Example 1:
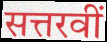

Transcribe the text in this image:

सत्तरवीं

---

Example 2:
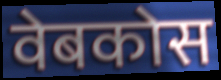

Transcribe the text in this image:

वेबकोस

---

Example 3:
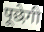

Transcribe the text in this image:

पूछेगी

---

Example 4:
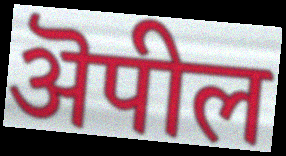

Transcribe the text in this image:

ऄपील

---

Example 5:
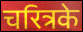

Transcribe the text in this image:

चरित्रके